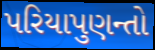
પરિયાપુણન્તો